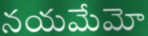
నయమేమో